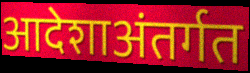
आदेशाअंतर्गत